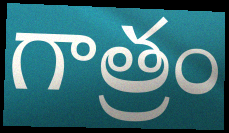
గాత్రం